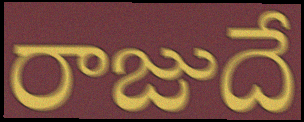
రాజుదే